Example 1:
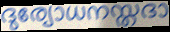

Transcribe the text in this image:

ദുര്യോധനസ്തദാ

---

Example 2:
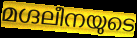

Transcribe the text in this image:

മഗ്ദലീനയുടെ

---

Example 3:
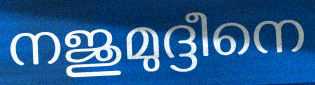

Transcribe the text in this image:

നജുമുദ്ദീനെ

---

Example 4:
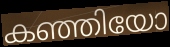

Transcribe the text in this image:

കഞ്ഞിയോ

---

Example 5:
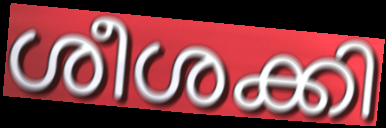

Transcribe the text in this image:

ശീശക്കി